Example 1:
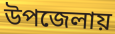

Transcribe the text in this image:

উপজেলায়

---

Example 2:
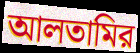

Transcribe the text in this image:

আলতামির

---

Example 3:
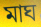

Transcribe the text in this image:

মাঘ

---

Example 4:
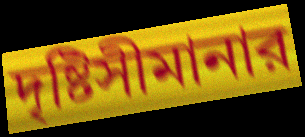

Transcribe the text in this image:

দৃষ্টিসীমানার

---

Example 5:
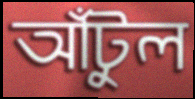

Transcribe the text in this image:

আঁটুল